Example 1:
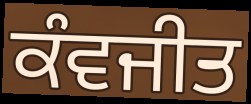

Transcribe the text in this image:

ਕੰਵਜੀਤ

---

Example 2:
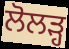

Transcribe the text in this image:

ਲੋਲੜ੍ਹ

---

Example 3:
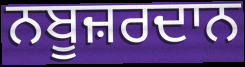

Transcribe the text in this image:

ਨਬੂਜ਼ਰਦਾਨ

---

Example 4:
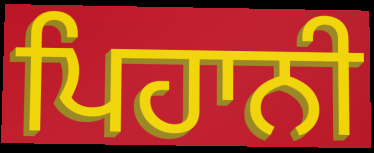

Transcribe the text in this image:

ਪਿਹਾਨੀ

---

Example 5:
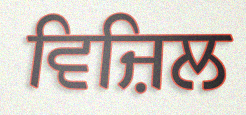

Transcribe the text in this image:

ਵਿਜ਼ਿਲ